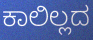
ಕಾಲಿಲ್ಲದ